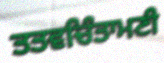
ਤਤਵਚਿੰਤਾਮਣੀ